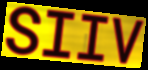
SIIV